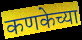
कणकेच्या